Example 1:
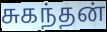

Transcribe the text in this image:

சுகந்தன்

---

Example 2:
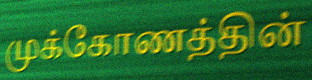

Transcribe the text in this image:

முக்கோணத்தின்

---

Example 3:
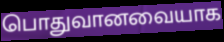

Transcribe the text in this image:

பொதுவானவையாக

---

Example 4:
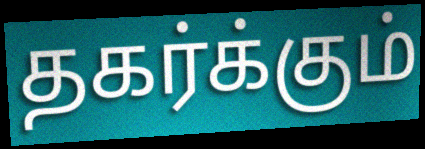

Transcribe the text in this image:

தகர்க்கும்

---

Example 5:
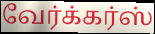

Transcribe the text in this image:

வேர்க்கர்ஸ்